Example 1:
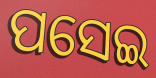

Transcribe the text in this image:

ପସେଇ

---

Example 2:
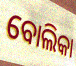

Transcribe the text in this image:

ବୋଲିକା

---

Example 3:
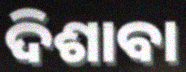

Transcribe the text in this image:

ଦିଶାବା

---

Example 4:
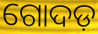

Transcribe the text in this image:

ଗୋଦଡ଼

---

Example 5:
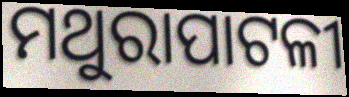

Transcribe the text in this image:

ମଥୁରାପାଟଳୀ